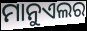
ମାନୁଏଲର